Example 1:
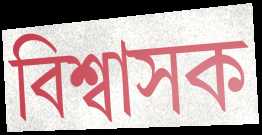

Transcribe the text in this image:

বিশ্বাসক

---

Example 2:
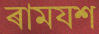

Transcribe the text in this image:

ৰামযশ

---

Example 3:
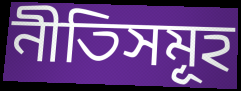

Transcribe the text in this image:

নীতিসমূহ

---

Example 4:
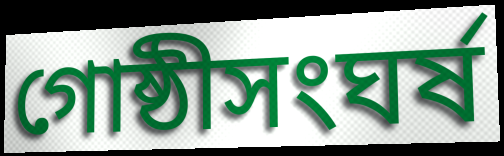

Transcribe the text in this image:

গোষ্ঠীসংঘৰ্ষ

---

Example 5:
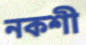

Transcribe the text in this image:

নকশী